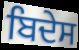
ਬਿਦੇਸ